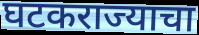
घटकराज्याचा